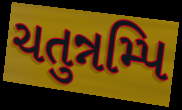
ચતુન્નમ્પિ